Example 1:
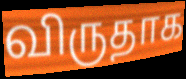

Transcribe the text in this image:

விருதாக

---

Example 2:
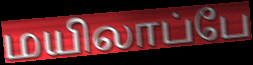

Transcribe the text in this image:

மயிலாப்பே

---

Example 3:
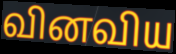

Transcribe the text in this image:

வினவிய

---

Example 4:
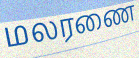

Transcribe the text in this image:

மலரணை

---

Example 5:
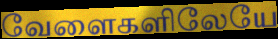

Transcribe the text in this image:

வேளைகளிலேயே